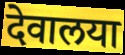
देवालया